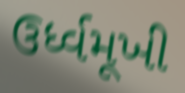
ઉર્ધ્વમૂખી